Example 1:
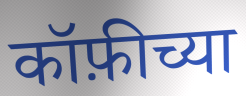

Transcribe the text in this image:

कॉफ़ीच्या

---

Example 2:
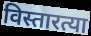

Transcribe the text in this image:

विस्तारत्या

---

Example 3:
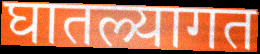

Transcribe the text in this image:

घातल्यागत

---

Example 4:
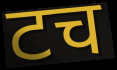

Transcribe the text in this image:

टच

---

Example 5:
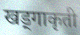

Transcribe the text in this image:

खड्गाकृती